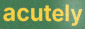
acutely